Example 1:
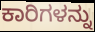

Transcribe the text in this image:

ಕಾರಿಗಳನ್ನು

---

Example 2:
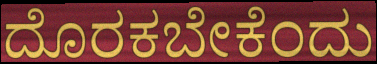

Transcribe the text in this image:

ದೊರಕಬೇಕೆಂದು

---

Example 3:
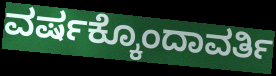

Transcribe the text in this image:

ವರ್ಷಕ್ಕೊಂದಾವರ್ತಿ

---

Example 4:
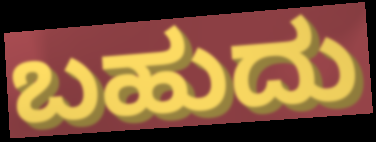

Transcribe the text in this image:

ಬಹುದು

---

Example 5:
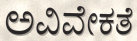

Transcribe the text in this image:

ಅವಿವೇಕತೆ